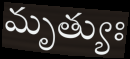
మృత్యుః